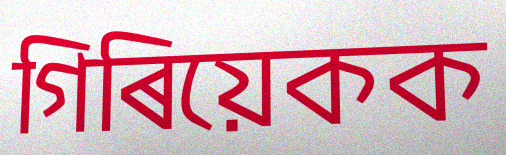
গিৰিয়েকক